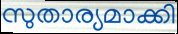
സുതാര്യമാക്കി